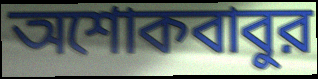
অশোকবাবুর